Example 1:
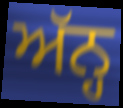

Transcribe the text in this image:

ਅੱਨ੍ਹ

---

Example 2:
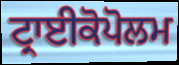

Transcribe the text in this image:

ਟ੍ਰਾਈਕੋਪੋਲਮ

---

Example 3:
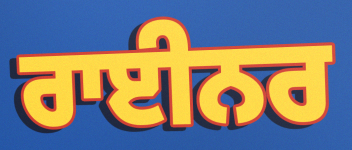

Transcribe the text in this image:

ਰਾਈਨਰ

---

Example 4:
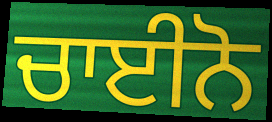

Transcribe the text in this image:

ਚਾਈਨੋ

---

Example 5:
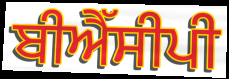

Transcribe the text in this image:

ਬੀਐੱਸੀਪੀ